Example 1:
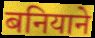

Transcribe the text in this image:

बनियाने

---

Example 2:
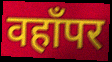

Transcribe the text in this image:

वहाँपर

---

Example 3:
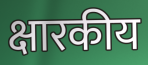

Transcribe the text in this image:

क्षारकीय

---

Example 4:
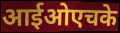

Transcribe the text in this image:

आईओएचके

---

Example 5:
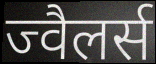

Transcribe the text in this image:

ज्वैलर्स